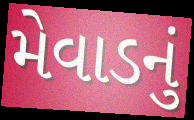
મેવાડનું